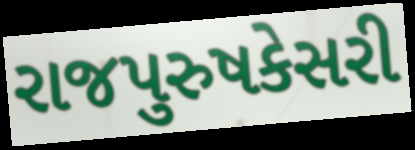
રાજપુરુષકેસરી